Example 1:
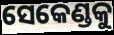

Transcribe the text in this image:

ସେକେଣ୍ଡକୁ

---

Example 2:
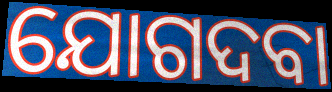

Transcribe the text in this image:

ଯୋଗଦବା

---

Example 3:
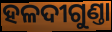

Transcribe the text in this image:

ହଳଦୀଗୁଣ୍ତା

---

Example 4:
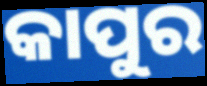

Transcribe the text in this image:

କାପୁର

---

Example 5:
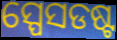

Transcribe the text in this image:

ସ୍ପେସଡଷ୍ଟ